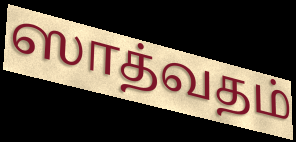
ஸாத்வதம்